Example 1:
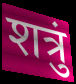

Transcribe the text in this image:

शत्रुं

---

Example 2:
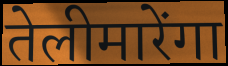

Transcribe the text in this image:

तेलीमारेंगा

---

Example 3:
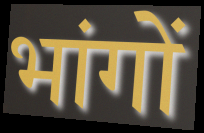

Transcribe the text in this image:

भांगों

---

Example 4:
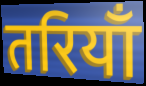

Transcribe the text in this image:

तरियाँ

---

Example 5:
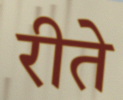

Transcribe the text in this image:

रीते